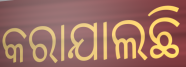
କରାଯାଲଛି